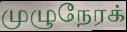
முழுநேரக்